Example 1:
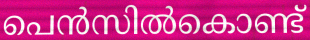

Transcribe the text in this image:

പെൻസിൽകൊണ്ട്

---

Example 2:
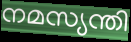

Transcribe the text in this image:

നമസ്യന്തി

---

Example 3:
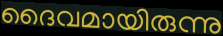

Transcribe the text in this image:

ദൈവമായിരുന്നു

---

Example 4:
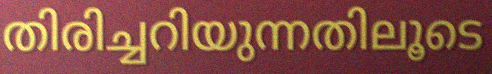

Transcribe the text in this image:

തിരിച്ചറിയുന്നതിലൂടെ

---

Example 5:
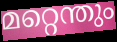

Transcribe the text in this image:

മറ്റെന്തും